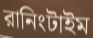
রানিংটাইম